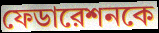
ফেডারেশনকে